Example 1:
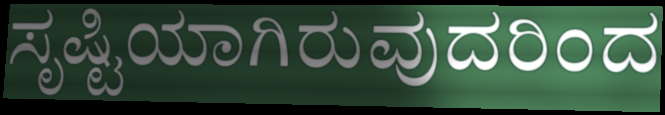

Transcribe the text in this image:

ಸೃಷ್ಟಿಯಾಗಿರುವುದರಿಂದ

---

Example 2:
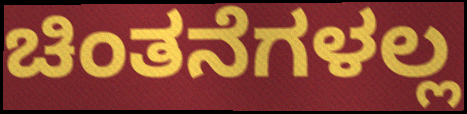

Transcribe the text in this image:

ಚಿಂತನೆಗಳಲ್ಲ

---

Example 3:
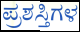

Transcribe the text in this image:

ಪ್ರಶಸ್ತಿಗಳ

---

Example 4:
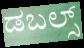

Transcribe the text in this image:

ಡಬಲ್ಸ್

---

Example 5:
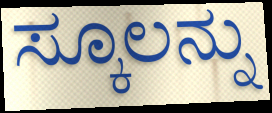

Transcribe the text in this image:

ಸ್ಕೂಲನ್ನು